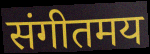
संगीतमय